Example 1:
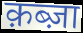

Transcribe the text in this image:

क़ब्ज़ा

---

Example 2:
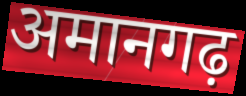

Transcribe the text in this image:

अमानगढ़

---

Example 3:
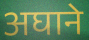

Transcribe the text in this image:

अघाने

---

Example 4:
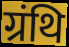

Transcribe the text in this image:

ग्रंथि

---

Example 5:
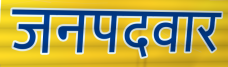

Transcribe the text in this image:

जनपदवार